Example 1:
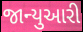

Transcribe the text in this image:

જાન્યુઆરી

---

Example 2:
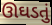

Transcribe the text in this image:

ઊઘડતું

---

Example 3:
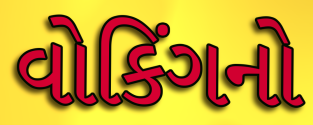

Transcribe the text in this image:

વોકિંગનો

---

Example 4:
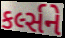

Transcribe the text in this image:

કર્લ્સને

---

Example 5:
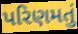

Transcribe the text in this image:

પરિણમતું